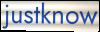
justknow